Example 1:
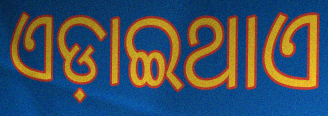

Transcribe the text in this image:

ଏଡ଼ାଇଥାଏ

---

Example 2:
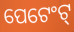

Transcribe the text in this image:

ପେଟେଂଟ୍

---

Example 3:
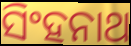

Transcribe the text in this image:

ସିଂହନାଥ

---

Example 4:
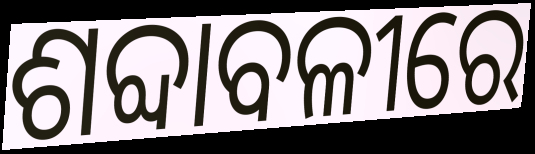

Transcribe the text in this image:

ଶବ୍ଦାବଳୀରେ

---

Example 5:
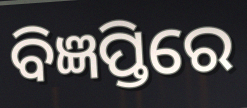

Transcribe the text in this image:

ବିଜ୍ଞପ୍ତିରେ